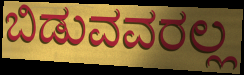
ಬಿಡುವವರಲ್ಲ